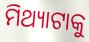
ମିଥ୍ୟାଟାକୁ